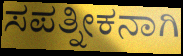
ಸಪತ್ನೀಕನಾಗಿ